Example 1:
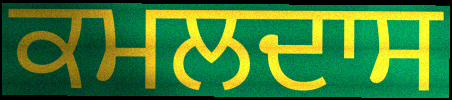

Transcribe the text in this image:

ਕਮਲਦਾਸ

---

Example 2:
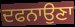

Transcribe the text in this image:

ਦਫਨਾਉਣਾ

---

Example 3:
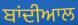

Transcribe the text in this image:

ਬਾਂਦੀਆਲ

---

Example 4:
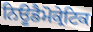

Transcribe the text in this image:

ਨਿਊਡੈਮੋਕ੍ਰੇਟਿਕ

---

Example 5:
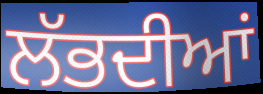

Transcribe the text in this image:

ਲੱਭਦੀਆਂ